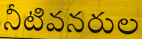
నీటివనరుల